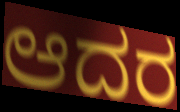
ಆದರ